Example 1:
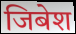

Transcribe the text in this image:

जिबेश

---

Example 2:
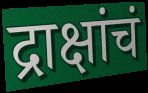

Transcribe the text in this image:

द्राक्षांचं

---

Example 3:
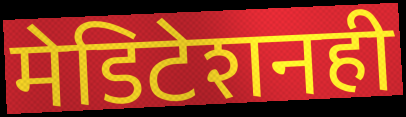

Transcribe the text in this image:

मेडिटेशनही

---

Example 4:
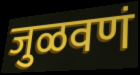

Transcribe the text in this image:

जुळवणं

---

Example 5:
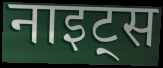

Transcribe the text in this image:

नाइट्‌स